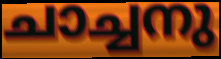
ചാച്ചനു